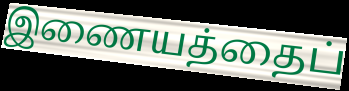
இணையத்தைப்